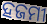
ହଜମୀ